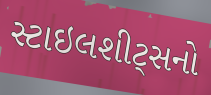
સ્ટાઇલશીટ્સનો